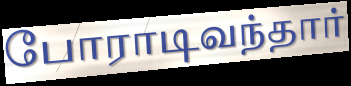
போராடிவந்தார்